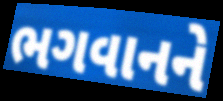
ભગવાનને